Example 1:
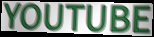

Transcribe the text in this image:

YOUTUBE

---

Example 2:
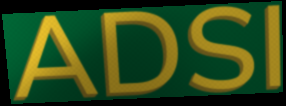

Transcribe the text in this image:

ADSI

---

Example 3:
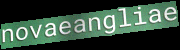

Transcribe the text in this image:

novaeangliae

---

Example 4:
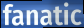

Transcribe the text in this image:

fanatic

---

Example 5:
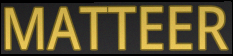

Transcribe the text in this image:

MATTEER